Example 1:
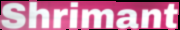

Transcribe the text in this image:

Shrimant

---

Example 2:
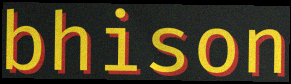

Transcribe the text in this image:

bhison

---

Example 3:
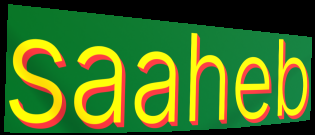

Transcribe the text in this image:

saaheb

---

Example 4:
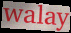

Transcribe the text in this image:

walay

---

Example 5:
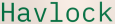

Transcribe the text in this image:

Havlock